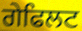
ਗੇਫਿਲਟ